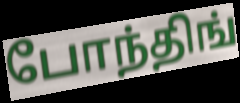
போந்திங்